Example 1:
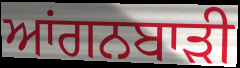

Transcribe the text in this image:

ਆਂਗਨਬਾੜੀ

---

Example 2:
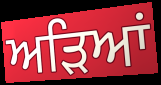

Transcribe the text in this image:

ਅੜਿਆਂ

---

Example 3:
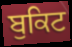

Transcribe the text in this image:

ਬੁਕਿਟ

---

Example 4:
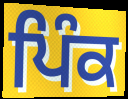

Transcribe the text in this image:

ਪਿੰਕ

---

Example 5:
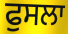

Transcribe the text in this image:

ਫੁਸਲਾ